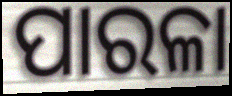
ପାରଳା